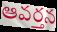
ఆవర్తన